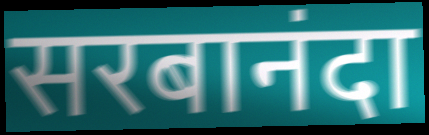
सरबानंदा